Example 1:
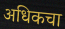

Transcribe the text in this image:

अधिकचा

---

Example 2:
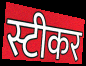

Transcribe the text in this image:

स्टीकर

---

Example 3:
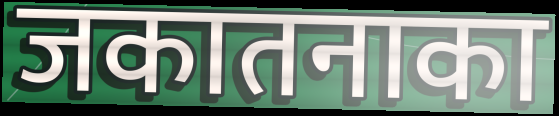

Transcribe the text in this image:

जकातनाका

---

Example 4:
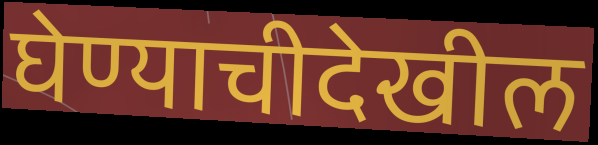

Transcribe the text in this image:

घेण्याचीदेखील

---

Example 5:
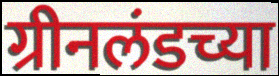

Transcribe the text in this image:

ग्रीनलंडच्या